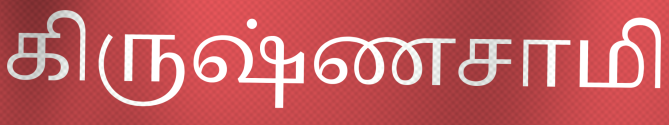
கிருஷ்ணசாமி